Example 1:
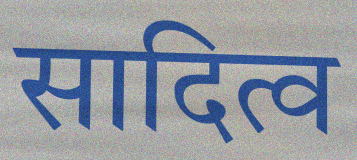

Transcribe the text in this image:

सादित्व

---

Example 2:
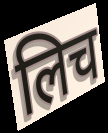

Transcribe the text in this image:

लिच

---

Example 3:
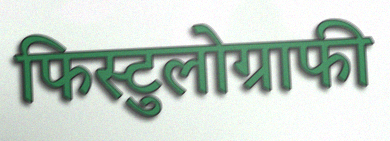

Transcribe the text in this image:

फिस्टुलोग्राफी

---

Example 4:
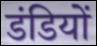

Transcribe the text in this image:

डंडियों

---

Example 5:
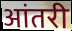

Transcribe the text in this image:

आंतरी